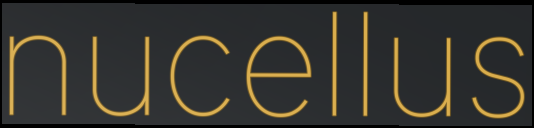
nucellus